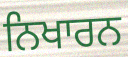
ਨਿਖਾਰਨ